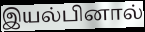
இயல்பினால்